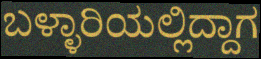
ಬಳ್ಳಾರಿಯಲ್ಲಿದ್ದಾಗ